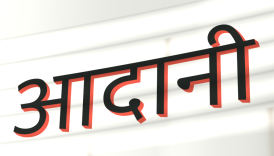
आदानी